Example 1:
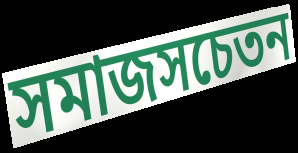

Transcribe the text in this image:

সমাজসচেতন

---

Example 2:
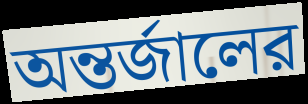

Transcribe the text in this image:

অন্তর্জালের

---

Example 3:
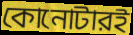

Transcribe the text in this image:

কোনোটারই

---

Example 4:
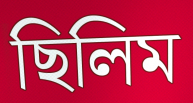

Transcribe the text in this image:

ছিলিম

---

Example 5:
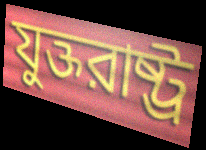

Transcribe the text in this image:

যুক্তরাষ্ট্র